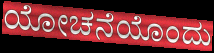
ಯೋಚನೆಯೊಂದು